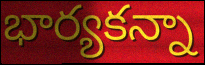
భార్యకన్నా